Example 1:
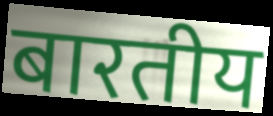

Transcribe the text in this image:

बारतीय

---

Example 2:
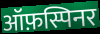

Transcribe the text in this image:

ऑफ़स्पिनर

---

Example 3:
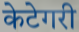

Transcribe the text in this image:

केटेगरी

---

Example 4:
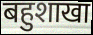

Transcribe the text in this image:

बहुशाखा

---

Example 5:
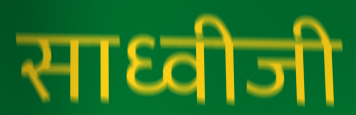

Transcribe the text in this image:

साध्वीजी